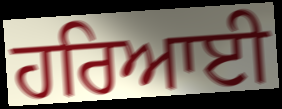
ਹਰਿਆਈ